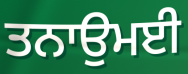
ਤਨਾਉਮਈ